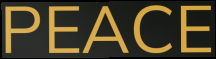
PEACE